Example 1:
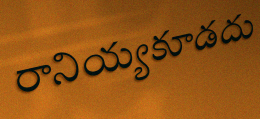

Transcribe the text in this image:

రానియ్యకూడదు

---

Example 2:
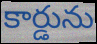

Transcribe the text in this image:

కార్డును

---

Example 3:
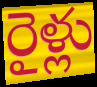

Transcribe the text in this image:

రైళ్లు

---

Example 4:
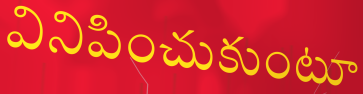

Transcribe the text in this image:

వినిపించుకుంటూ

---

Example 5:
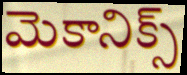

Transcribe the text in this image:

మెకానిక్స్